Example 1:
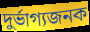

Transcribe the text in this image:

দুৰ্ভাগ্যজনক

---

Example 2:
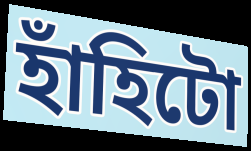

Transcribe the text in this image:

হাঁহিটো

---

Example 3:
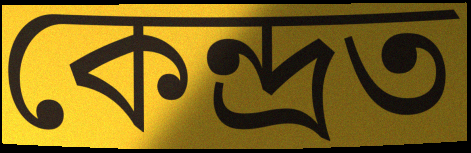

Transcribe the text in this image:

কেন্দ্ৰত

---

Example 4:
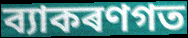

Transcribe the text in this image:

ব্যাকৰণগত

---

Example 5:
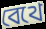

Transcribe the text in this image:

বেথে